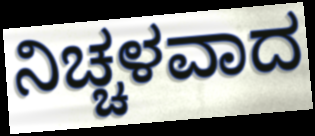
ನಿಚ್ಚಳವಾದ